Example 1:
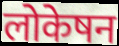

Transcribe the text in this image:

लोकेषन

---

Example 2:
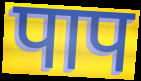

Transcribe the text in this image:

पाप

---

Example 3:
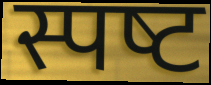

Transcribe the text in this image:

स्‍पष्‍ट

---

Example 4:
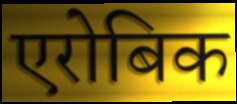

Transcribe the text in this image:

एरोबिक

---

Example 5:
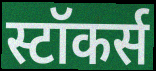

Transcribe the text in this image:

स्टॉकर्स